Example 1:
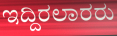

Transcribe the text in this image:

ಇದ್ದಿರಲಾರರು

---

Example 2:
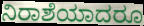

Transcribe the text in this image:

ನಿರಾಶೆಯಾದರೂ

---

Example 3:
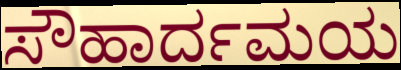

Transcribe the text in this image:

ಸೌಹಾರ್ದಮಯ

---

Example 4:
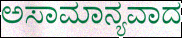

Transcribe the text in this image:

ಅಸಾಮಾನ್ಯವಾದ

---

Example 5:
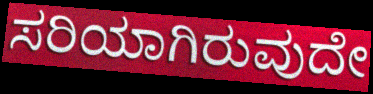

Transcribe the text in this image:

ಸರಿಯಾಗಿರುವುದೇ